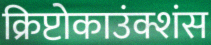
क्रिप्टोकाउंक्शंस